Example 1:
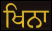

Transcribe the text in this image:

ਖਿਨਾ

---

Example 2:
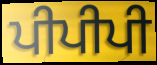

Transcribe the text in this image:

ਪੀਪੀਪੀ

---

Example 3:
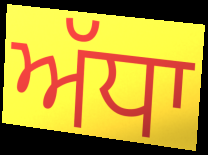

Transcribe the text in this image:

ਅੱਧਾ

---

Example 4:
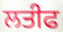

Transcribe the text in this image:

ਲਤੀਫ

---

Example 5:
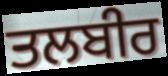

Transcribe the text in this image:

ਤਲਬੀਰ